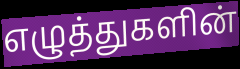
எழுத்துகளின்